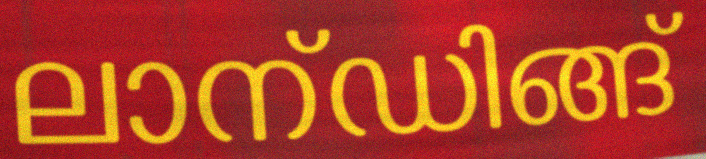
ലാന്ഡിങ്ങ്